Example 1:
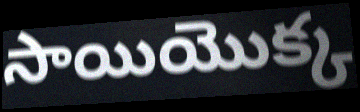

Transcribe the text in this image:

సాయియొక్క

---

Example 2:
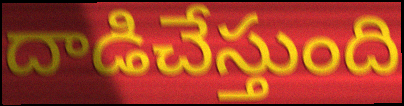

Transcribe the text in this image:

దాడిచేస్తుంది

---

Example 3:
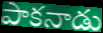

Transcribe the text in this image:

పాకనాడు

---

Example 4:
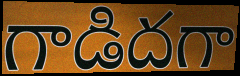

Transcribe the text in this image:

గాడిదగా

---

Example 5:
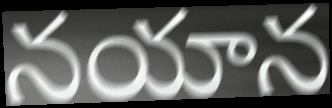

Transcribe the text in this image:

నయాన